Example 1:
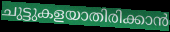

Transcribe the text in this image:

ചുട്ടുകളയാതിരിക്കാൻ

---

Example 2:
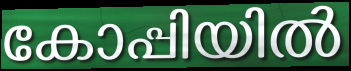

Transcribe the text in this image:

കോപ്പിയിൽ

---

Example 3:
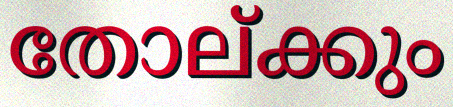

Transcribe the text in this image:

തോല്ക്കും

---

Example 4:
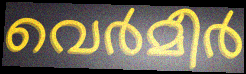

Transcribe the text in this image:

വെർമീർ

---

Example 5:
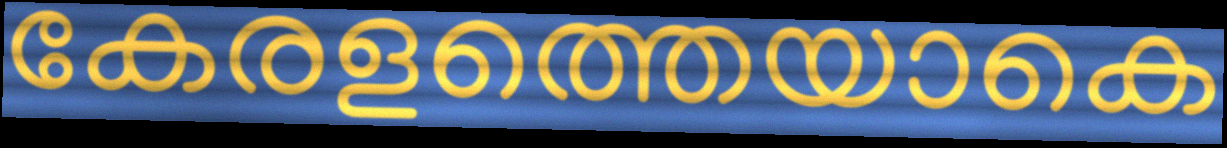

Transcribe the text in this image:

കേരളത്തെയാകെ